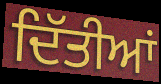
ਦਿੱਤੀਆਂ